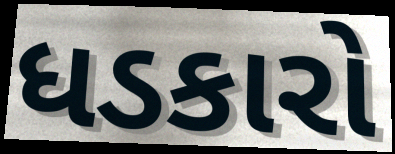
ધડકારો